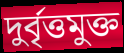
দুর্বৃত্তমুক্ত